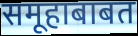
समूहाबाबत